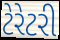
ટેરેટરી